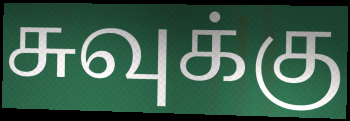
சுவுக்கு